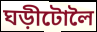
ঘড়ীটোলৈ